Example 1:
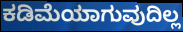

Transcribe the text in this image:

ಕಡಿಮೆಯಾಗುವುದಿಲ್ಲ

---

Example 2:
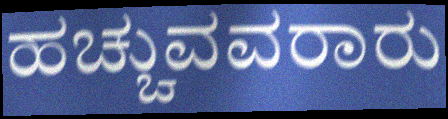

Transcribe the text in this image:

ಹಚ್ಚುವವರಾರು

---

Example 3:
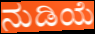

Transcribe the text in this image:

ನುಡಿಯೆ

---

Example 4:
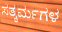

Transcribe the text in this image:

ಸತ್ಕರ್ಮಗಳ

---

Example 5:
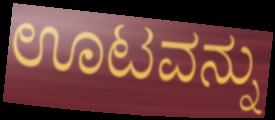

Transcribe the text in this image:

ಊಟವನ್ನು